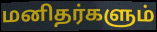
மனிதர்களும்